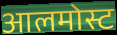
आलमोस्ट